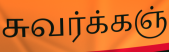
சுவர்க்கஞ்